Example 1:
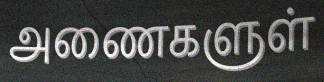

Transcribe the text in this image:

அணைகளுள்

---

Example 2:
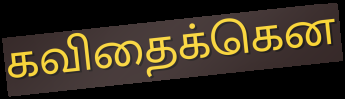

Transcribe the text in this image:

கவிதைக்கென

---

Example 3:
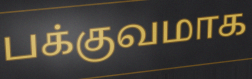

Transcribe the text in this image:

பக்குவமாக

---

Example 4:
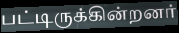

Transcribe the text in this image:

பட்டிருக்கின்றனர்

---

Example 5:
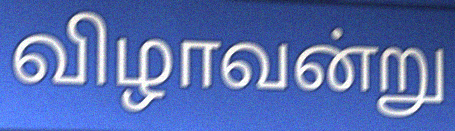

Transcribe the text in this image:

விழாவன்று